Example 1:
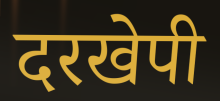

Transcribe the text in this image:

दरखेपी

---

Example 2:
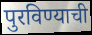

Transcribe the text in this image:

पुरविण्याची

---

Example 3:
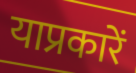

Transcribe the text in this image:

याप्रकारें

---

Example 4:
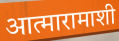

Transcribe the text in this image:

आत्मारामाशी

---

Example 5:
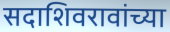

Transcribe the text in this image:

सदाशिवरावांच्या